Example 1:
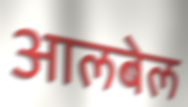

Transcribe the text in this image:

आलबेल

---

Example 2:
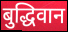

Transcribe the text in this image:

बुद्धिवान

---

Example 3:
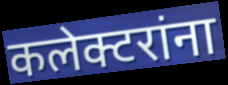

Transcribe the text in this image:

कलेक्टरांना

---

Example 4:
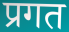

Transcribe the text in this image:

प्रगत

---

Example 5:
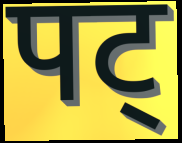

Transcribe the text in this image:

पट्